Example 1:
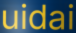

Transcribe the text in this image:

uidai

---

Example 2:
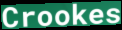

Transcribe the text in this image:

Crookes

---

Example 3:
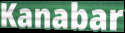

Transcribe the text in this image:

Kanabar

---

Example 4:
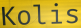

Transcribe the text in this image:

Kolis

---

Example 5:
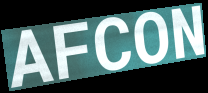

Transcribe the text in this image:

AFCON